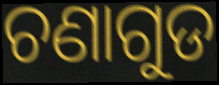
ଚଣାଗୁଡ